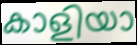
കാളിയാ